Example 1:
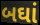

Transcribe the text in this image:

બઘાં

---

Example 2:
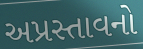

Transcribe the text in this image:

અપ્રસ્તાવનો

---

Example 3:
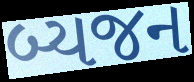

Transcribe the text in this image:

બ્યજન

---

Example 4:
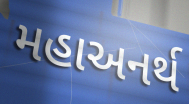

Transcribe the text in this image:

મહાઅનર્થ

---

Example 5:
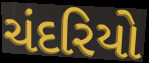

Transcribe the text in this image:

ચંદરિયો